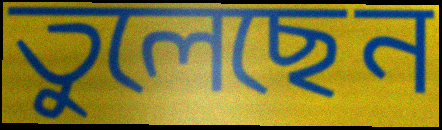
তুলেছেন